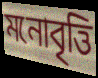
মনোবৃত্তি